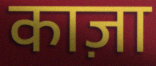
काज़ा